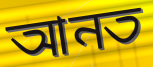
আনত